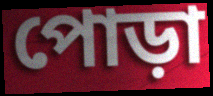
পোড়া